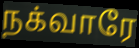
நக்வாரே